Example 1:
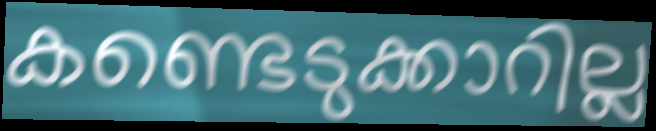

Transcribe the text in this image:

കണ്ടെടുക്കാറില്ല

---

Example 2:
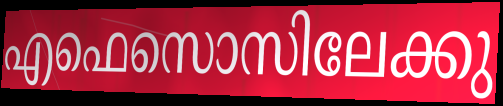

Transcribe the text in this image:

എഫെസൊസിലേക്കു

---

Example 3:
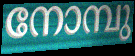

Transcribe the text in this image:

നോമ്പു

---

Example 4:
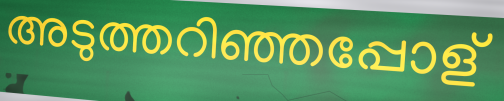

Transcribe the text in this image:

അടുത്തറിഞ്ഞപ്പോള്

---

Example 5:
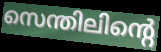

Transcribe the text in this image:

സെന്തിലിന്റെ